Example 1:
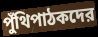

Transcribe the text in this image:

পুঁথিপাঠকদের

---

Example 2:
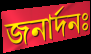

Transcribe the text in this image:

জনার্দনঃ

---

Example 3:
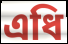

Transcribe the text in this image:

এধি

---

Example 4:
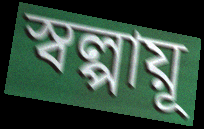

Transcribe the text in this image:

স্বল্পায়ূ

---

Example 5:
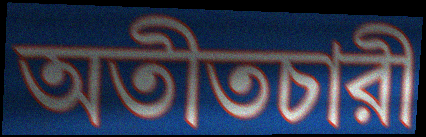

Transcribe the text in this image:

অতীতচারী